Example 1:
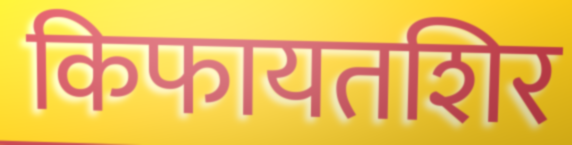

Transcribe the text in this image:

किफायतशिर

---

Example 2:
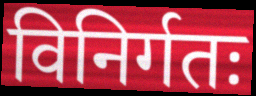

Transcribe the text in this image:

विनिर्गतः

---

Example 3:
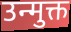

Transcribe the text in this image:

उन्मुक्त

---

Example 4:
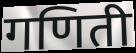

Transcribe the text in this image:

गणिती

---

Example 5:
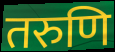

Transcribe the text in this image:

तरुणि